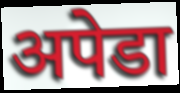
अपेडा